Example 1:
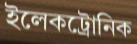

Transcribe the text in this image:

ইলেকট্রোনিক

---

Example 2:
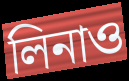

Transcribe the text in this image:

লিনাও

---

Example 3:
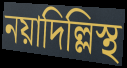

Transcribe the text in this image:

নয়াদিল্লিস্থ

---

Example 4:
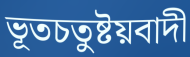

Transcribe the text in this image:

ভূতচতুষ্টয়বাদী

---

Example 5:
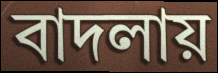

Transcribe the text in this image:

বাদলায়